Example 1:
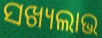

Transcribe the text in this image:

ସଖ୍ୟଲାଭ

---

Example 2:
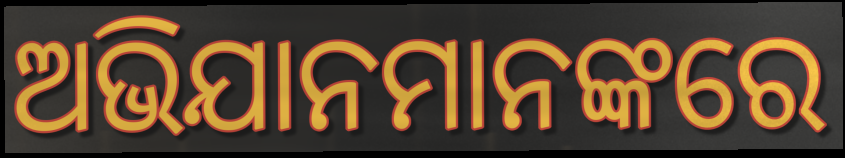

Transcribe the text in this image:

ଅଭିଯାନମାନଙ୍କରେ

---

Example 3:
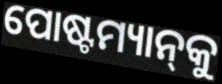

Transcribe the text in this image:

ପୋଷ୍ଟମ୍ୟାନ୍‌କୁ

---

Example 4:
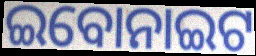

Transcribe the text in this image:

ଇବୋନାଇଟ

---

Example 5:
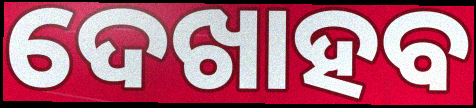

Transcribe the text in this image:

ଦେଖାହବ